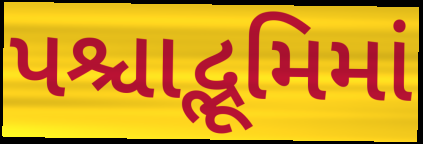
પશ્ચાદ્ભૂમિમાં